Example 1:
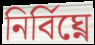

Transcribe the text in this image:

নির্বিঘ্নে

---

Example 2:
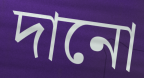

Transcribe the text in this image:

দানো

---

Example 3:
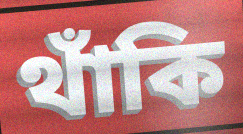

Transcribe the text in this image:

থাঁকি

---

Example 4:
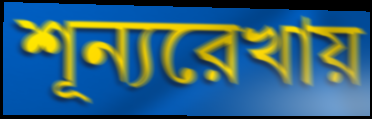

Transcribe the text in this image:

শূন্যরেখায়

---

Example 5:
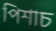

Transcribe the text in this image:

পিশাচ